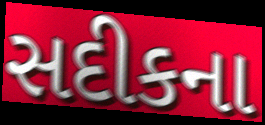
સદીકના